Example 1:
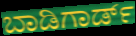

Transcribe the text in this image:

ಬಾಡಿಗಾರ್ಡ್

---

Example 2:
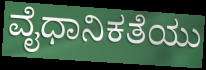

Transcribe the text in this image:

ವೈಧಾನಿಕತೆಯು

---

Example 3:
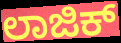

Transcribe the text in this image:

ಲಾಜಿಕ್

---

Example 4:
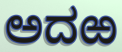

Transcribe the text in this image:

ಅದಱ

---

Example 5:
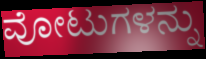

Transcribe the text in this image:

ವೋಟುಗಳನ್ನು